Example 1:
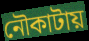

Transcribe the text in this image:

নৌকাটায়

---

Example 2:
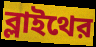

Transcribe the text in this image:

ব্লাইথের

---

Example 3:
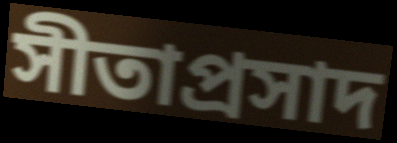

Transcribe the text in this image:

সীতাপ্রসাদ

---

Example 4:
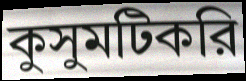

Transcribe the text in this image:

কুসুমটিকরি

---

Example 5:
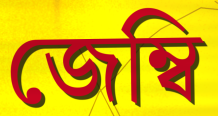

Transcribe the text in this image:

জেম্বি